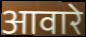
आवारे